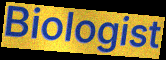
Biologist